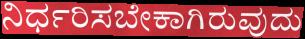
ನಿರ್ಧರಿಸಬೇಕಾಗಿರುವುದು